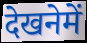
देखनेमें